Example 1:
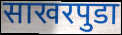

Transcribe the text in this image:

साखरपुडा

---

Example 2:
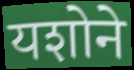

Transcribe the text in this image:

यशोने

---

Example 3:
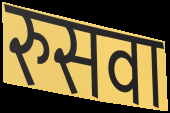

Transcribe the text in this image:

रुसवा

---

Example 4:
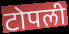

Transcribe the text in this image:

टोपली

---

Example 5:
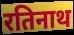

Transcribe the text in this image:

रतिनाथ